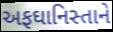
અફઘાનિસ્તાને